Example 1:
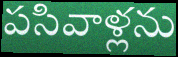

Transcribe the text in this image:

పసివాళ్లను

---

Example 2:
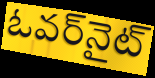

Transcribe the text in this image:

ఓవర్‌నైట్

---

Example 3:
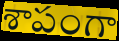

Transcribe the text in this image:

శాపంగా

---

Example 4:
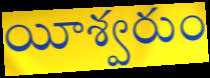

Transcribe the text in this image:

యీశ్వరుం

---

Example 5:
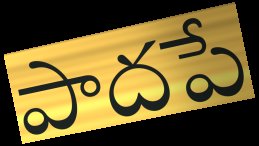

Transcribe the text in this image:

పాదపే